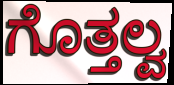
ಗೊತ್ತಲ್ವ